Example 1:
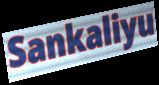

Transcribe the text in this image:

Sankaliyu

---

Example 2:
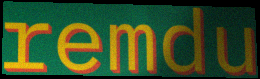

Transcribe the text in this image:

remdu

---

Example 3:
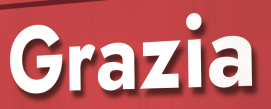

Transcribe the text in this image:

Grazia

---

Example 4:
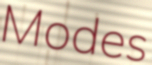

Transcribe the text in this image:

Modes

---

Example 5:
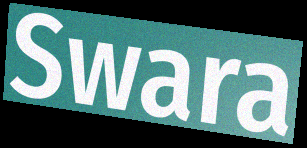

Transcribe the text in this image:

Swara